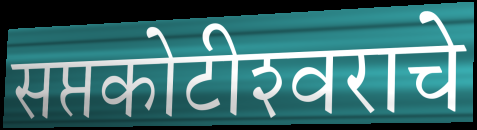
सप्तकोटीश्वराचे